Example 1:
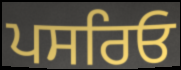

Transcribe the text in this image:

ਪਸਰਿਓ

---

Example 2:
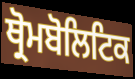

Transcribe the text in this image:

ਥ੍ਰੋਮਬੋਲਿਟਿਕ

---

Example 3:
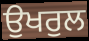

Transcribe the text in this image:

ਉਖਰੁਲ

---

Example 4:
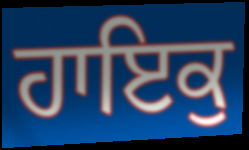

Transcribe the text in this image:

ਹਾਇਕੁ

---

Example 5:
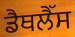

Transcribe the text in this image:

ਡੈਥਲੈੱਸ